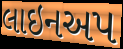
લાઇનઅપ